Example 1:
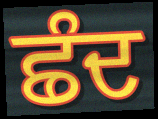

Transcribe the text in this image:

ਛੰਦ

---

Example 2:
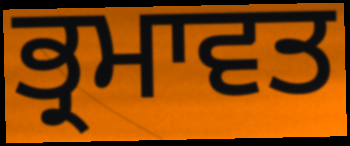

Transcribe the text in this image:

ਭ੍ਰਮਾਵਤ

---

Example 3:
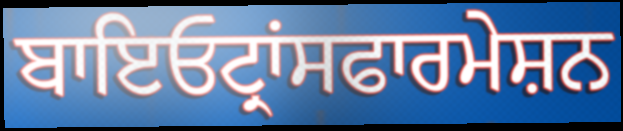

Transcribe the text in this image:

ਬਾਇਓਟ੍ਰਾਂਸਫਾਰਮੇਸ਼ਨ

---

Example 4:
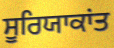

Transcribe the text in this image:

ਸੂਰਿਯਾਕਾਂਤ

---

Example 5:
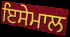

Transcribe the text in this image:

ਇਸੇਮਾਲ